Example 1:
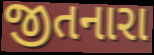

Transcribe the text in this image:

જીતનારા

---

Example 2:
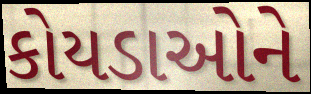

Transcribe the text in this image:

કોયડાઓને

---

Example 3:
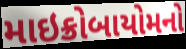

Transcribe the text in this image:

માઇક્રોબાયોમનો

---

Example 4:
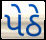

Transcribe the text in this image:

પેઠે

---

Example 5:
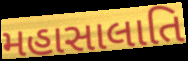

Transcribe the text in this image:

મહાસાલાતિ